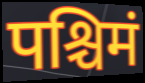
पश्चिमं